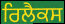
ਰਿਲੈਕਸ